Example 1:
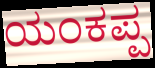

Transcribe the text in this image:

ಯಂಕಪ್ಪ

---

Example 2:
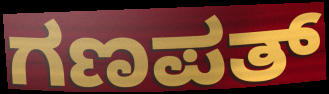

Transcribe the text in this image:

ಗಣಪತ್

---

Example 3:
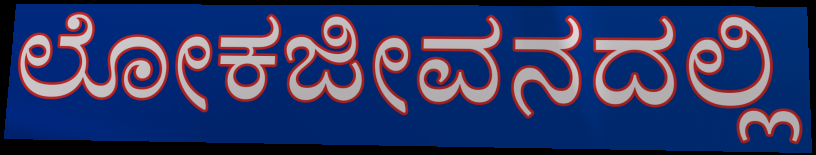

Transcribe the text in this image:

ಲೋಕಜೀವನದಲ್ಲಿ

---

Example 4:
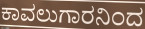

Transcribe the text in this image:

ಕಾವಲುಗಾರನಿಂದ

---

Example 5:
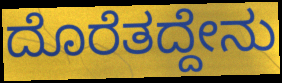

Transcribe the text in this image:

ದೊರೆತದ್ದೇನು